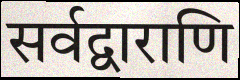
सर्वद्वाराणि